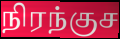
நிரந்குச